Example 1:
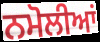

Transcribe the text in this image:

ਨਮੋਲੀਆਂ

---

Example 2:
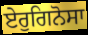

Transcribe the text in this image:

ਏਰੁਗਿਨੋਸਾ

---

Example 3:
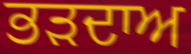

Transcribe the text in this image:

ਭੜਦਾਅ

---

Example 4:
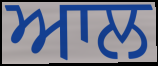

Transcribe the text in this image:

ਆਲ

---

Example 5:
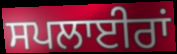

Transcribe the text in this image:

ਸਪਲਾਈਰਾਂ